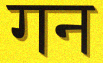
गन